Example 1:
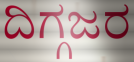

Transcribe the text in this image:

ದಿಗ್ಗಜರ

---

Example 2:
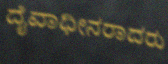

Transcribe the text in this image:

ದೈವಾಧೀನರಾದರು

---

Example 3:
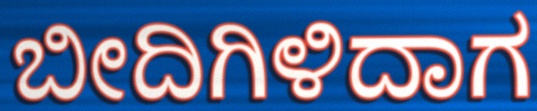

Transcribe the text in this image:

ಬೀದಿಗಿಳಿದಾಗ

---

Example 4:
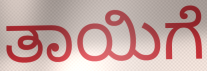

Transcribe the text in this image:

ತಾಯಿಗೆ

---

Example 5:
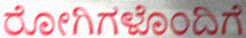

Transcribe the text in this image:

ರೋಗಿಗಳೊಂದಿಗೆ